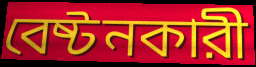
বেষ্টনকারী